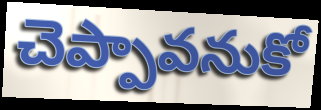
చెప్పావనుకో